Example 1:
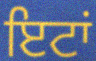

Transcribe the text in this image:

ਇਟਾਂ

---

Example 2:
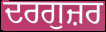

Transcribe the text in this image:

ਦਰਗੁਜ਼ਰ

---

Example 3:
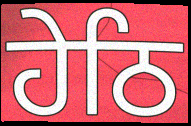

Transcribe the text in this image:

ਹੇਠਿ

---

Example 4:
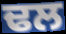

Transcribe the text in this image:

ਢਲ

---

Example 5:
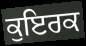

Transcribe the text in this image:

ਕੁਇਰਕ